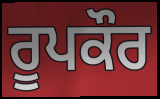
ਰੂਪਕੌਰ